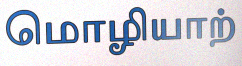
மொழியாற்